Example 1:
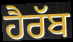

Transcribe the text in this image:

ਹੈਰੱਬ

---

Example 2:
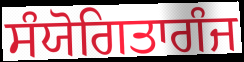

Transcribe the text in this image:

ਸੰਯੋਗਿਤਾਗੰਜ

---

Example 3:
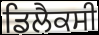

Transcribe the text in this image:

ਡਿਲੈਕਸੀ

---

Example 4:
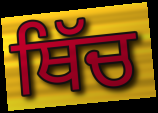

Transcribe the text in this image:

ਥਿੱਚ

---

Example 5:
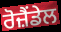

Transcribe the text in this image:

ਰੋਜ਼ੈਂਡੇਲ